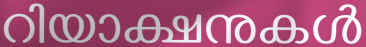
റിയാക്ഷനുകൾ